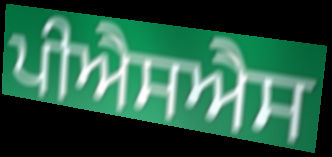
ਪੀਐਸਐਸ